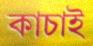
কাচাই